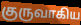
குருவாகிய